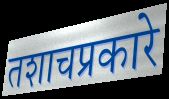
तशाचप्रकारे